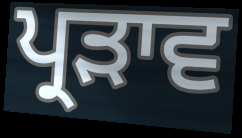
ਪ੍ਰੜਾਵ